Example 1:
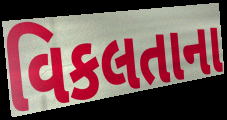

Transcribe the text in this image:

વિકલતાના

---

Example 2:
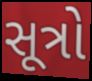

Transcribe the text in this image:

સૂત્રો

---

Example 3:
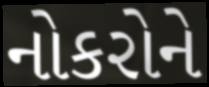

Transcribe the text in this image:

નોકરોને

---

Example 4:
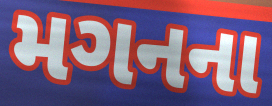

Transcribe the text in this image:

મગનના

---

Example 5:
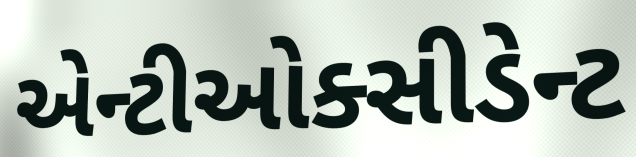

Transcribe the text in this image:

એન્ટીઓક્સીડેન્ટ